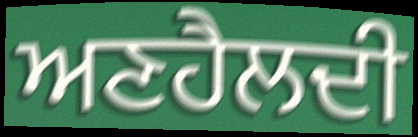
ਅਣਹੈਲਦੀ